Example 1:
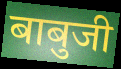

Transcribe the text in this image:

बाबुजी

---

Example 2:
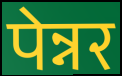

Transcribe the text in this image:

पेन्नर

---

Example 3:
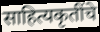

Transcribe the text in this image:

साहित्यकृतींचे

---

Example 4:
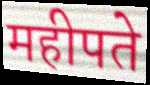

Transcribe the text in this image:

महीपते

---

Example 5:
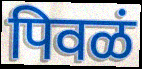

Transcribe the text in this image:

पिवळं